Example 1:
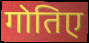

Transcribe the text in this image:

गोतिए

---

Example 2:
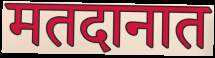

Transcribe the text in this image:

मतदानात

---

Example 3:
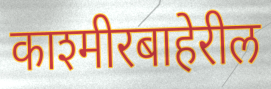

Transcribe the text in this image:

काश्मीरबाहेरील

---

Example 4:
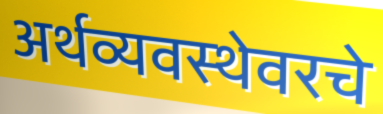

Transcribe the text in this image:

अर्थव्यवस्थेवरचे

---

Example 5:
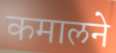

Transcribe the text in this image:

कमालने